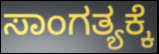
ಸಾಂಗತ್ಯಕ್ಕೆ